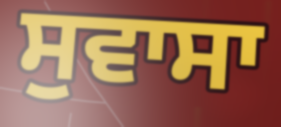
ਸੁਵਾਸਾ